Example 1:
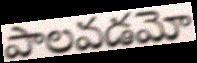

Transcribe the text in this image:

పాలవడమో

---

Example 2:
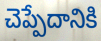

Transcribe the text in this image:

చెప్పేదానికి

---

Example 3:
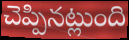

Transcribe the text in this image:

చెప్పినట్లుంది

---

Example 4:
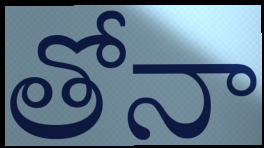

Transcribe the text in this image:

తోనా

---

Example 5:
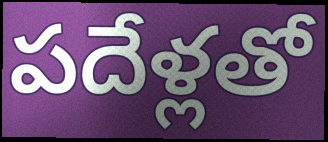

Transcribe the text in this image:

పదేళ్లతో